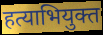
हत्याभियुक्त